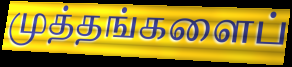
முத்தங்களைப்